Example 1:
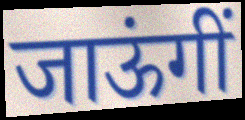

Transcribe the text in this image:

जाऊंगीं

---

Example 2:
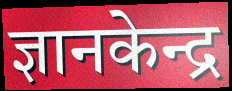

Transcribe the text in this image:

ज्ञानकेन्द्र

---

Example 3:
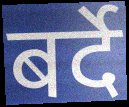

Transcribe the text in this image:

बर्दे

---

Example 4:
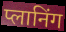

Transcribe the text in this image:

प्लानिंग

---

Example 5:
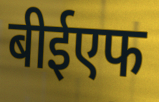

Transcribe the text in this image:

बीईएफ